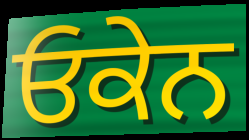
ਓਕੇਨ